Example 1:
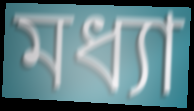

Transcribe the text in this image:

মধ্যা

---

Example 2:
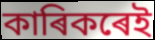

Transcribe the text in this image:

কাৰিকৰেই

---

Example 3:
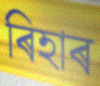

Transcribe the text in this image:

ৰিহাৰ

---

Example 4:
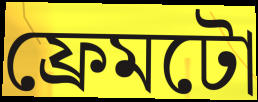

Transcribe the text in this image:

ফ্ৰেমটো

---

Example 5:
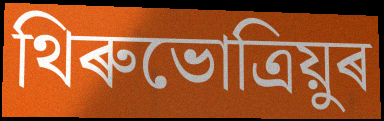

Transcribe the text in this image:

থিৰুভোত্ৰিয়ুৰ